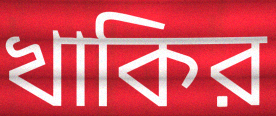
খাকির